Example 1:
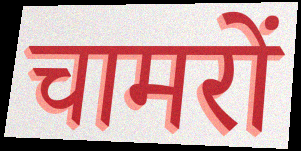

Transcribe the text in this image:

चामरों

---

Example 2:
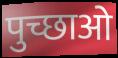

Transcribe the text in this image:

पुच्छाओ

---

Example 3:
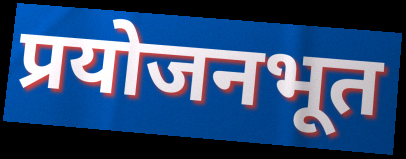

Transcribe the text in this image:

प्रयोजनभूत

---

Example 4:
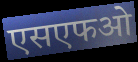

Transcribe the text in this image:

एसएफओ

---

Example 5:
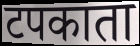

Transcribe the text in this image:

टपकाता